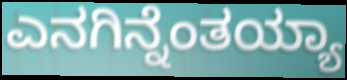
ಎನಗಿನ್ನೆಂತಯ್ಯಾ